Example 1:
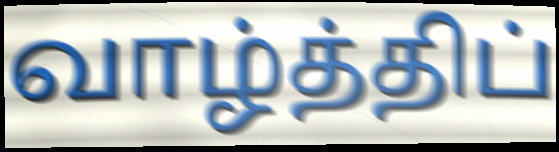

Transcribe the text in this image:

வாழ்த்திப்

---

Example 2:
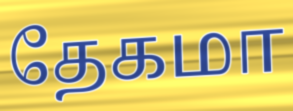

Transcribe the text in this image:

தேகமா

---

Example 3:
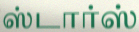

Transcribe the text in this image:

ஸ்டார்ஸ்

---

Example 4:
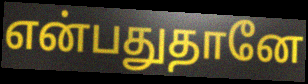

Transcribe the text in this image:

என்பதுதானே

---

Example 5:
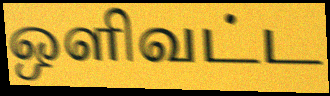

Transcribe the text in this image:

ஒளிவட்ட